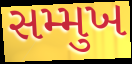
સમ્મુખ